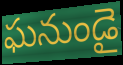
ఘనుండై